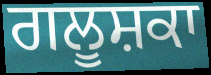
ਗਲੂਸ਼ਕਾ